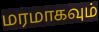
மரமாகவும்